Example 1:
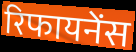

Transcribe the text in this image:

रिफायनेंस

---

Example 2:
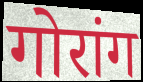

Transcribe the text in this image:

गोरांग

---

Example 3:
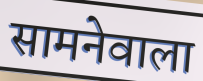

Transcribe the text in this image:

सामनेवाला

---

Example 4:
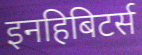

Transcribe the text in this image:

इनहिबिटर्स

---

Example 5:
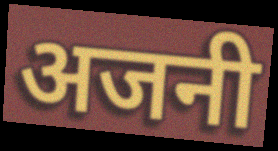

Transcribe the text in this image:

अजनी